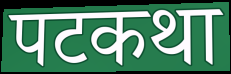
पटकथा